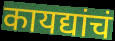
कायद्यांचं